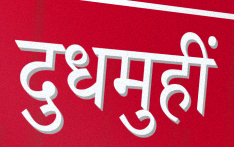
दुधमुहीं